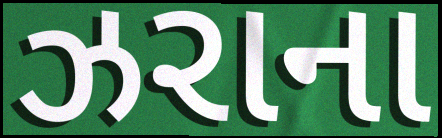
ઝરાના